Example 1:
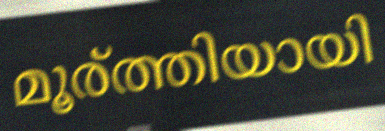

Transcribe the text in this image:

മൂര്ത്തിയായി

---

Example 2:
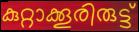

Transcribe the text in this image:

കുറ്റാക്കൂരിരുട്ട്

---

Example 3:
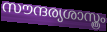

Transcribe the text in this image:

സൗന്ദര്യശാസ്ത്രം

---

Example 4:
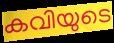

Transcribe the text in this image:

കവിയുടെ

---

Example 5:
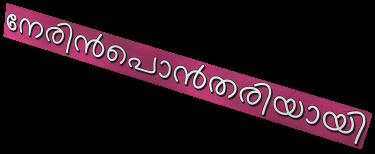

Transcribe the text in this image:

നേരിൻപൊൻതരിയായി